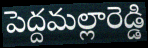
పెద్దమల్లారెడ్డి